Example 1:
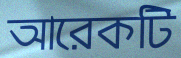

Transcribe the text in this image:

আরেকটি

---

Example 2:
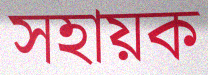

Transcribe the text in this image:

সহায়ক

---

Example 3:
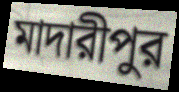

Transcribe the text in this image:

মাদারীপুর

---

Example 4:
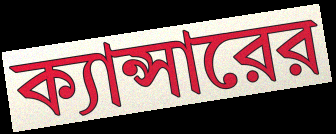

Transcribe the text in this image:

ক্যান্সারের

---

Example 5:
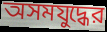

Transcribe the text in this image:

অসমযুদ্ধের